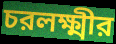
চরলক্ষ্মীর